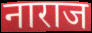
नाराज